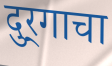
दुर्गाचा